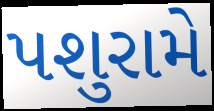
પશુરામે